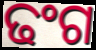
ଢଂଗ